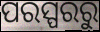
ପରସ୍ପରରୁ